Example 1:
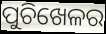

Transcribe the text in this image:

ପୁଚିଖେଳର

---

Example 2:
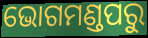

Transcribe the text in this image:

ଭୋଗମଣ୍ଡପରୁ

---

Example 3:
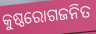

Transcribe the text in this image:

କୁଷ୍ଠରୋଗଜନିତ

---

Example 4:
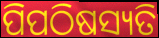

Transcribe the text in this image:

ପିପଠିଷସ୍ଯତି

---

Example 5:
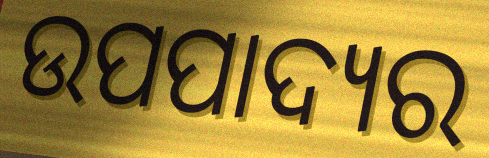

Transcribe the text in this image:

ଉପପାଦ୍ୟର